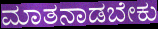
ಮಾತನಾಡಬೇಕು